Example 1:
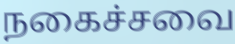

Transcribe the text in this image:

நகைச்சவை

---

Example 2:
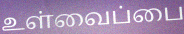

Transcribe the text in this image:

உள்வைப்பை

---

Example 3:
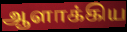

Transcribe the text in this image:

ஆளாக்கிய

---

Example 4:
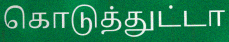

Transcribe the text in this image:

கொடுத்துட்டா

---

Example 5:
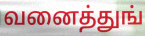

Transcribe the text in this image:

வனைத்துங்